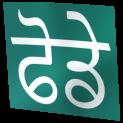
ਫੋਡੇ